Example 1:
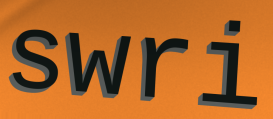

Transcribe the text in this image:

swri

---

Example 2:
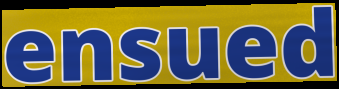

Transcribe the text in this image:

ensued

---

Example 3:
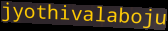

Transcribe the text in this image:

jyothivalaboju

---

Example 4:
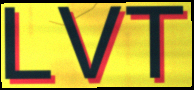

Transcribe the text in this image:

LVT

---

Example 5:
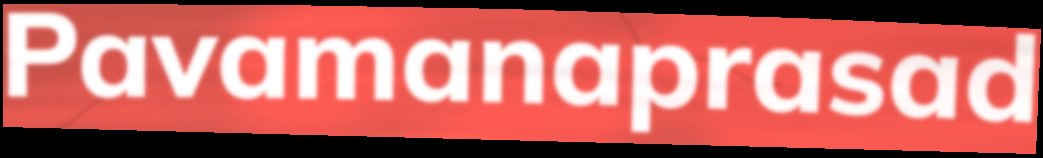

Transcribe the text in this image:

Pavamanaprasad